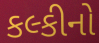
કલ્કીનો